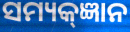
ସମ୍ୟକ୍ଜ୍ଞାନ